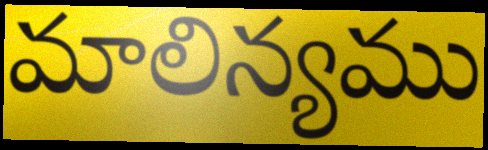
మాలిన్యము